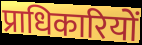
प्राधिकारियों